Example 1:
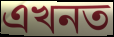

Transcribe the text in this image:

এখনত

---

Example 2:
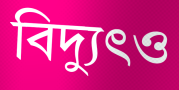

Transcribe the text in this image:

বিদ্যুৎও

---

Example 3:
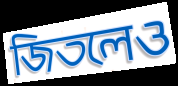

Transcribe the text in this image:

জিতলেও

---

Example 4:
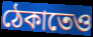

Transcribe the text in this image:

ঠেকাতেও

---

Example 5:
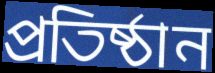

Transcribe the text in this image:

প্রতিষ্ঠান